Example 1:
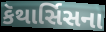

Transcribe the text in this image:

કૅથાર્સિસના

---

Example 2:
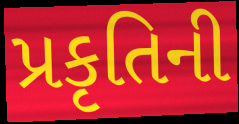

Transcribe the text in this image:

પ્રકૃતિની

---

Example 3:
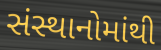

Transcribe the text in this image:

સંસ્થાનોમાંથી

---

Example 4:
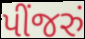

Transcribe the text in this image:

પીંજરું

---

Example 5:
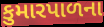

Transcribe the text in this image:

કુમારપાળના